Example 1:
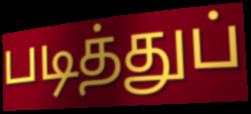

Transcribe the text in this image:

படித்துப்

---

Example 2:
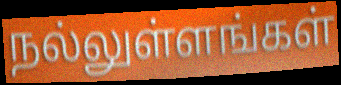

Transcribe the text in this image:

நல்லுள்ளங்கள்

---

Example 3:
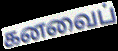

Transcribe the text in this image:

கனவைப்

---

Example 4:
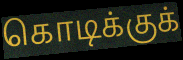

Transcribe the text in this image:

கொடிக்குக்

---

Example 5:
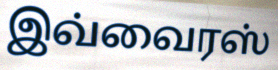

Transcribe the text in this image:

இவ்வைரஸ்